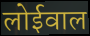
लोईवाल